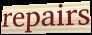
repairs